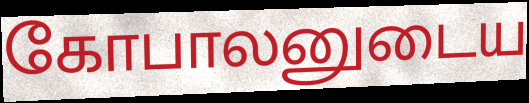
கோபாலனுடைய